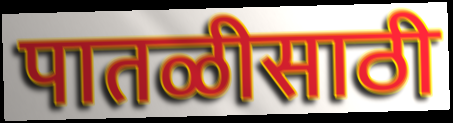
पातळीसाठी